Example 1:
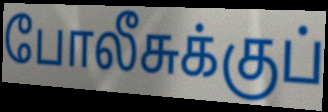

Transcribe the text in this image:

போலீசுக்குப்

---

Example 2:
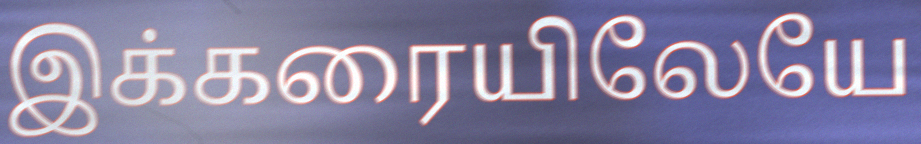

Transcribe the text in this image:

இக்கரையிலேயே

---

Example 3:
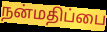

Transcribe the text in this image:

நன்மதிப்பை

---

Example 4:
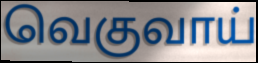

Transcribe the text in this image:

வெகுவாய்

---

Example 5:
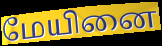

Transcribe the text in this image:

மேயினை